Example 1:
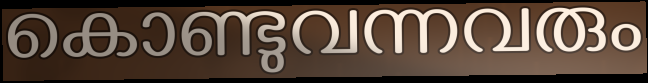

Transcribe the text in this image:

കൊണ്ടുവന്നവരും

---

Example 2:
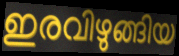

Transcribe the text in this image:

ഇരവിഴുങ്ങിയ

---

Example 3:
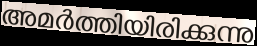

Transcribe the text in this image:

അമർത്തിയിരിക്കുന്നു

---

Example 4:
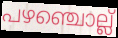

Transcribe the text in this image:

പഴഞ്ചൊല്ല്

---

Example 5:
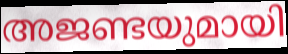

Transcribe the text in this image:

അജണ്ടയുമായി